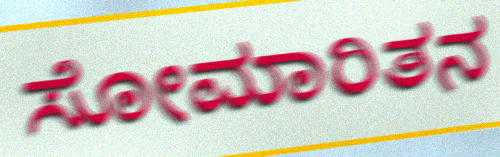
ಸೋಮಾರಿತನ